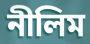
নীলিম